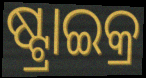
ଷ୍ଟ୍ରାଇକ୍ର